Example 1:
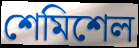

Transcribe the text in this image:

শেমিশেল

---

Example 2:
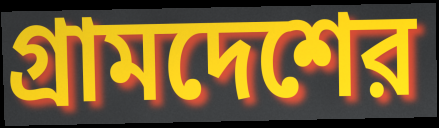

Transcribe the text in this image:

গ্রামদেশের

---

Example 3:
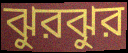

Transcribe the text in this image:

ঝুরঝুর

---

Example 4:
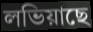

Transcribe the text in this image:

লভিয়াছে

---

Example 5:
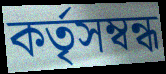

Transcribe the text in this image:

কর্তৃসম্বন্ধ